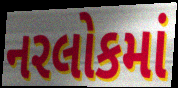
નરલોકમાં